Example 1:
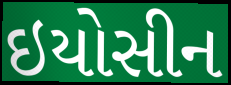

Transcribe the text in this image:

ઇયોસીન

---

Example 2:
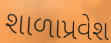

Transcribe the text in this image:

શાળાપ્રવેશ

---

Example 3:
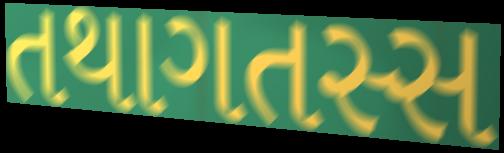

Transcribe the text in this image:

તથાગતસ્સ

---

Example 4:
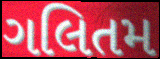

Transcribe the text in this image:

ગલિતમ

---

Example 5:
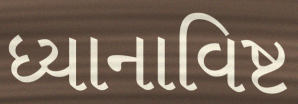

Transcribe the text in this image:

ધ્યાનાવિષ્ટ